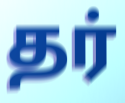
தர்